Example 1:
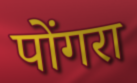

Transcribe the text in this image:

पोंगरा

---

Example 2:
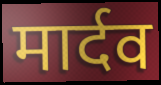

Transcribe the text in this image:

मार्दव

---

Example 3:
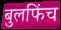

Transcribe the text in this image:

बुलफिंच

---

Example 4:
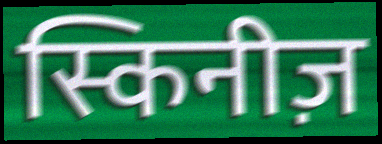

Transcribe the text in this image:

स्किनीज़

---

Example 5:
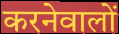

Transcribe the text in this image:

करनेवालों